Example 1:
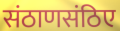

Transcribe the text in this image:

संठाणसंठिए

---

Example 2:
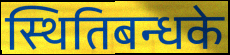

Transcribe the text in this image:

स्थितिबन्धके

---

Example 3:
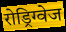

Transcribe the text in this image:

रोड्रिग्वेज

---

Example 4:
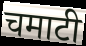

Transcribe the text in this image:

चमाटी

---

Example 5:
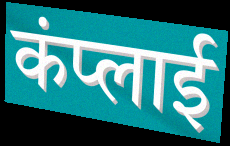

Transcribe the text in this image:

कंप्लाई